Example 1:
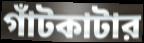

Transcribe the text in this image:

গাঁটকাটার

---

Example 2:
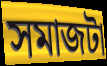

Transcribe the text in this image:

সমাজটা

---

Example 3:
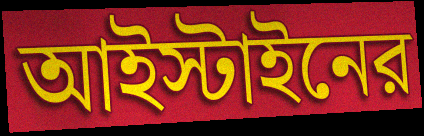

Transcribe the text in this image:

আইস্টাইনের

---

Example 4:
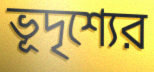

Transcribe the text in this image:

ভূদৃশ্যের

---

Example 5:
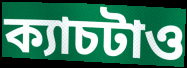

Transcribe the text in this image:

ক্যাচটাও